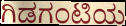
ಗಿಡಗಂಟಿಯ